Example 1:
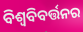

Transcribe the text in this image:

ବିଶ୍ଵବିବର୍ତ୍ତନର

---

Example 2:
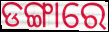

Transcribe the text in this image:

ଡଙ୍ଗାରେ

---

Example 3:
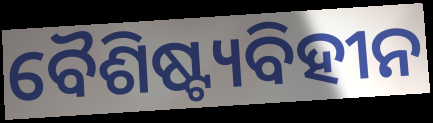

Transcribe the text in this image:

ବୈଶିଷ୍ଟ୍ୟବିହୀନ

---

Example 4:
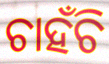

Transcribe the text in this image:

ଚାହଁଚି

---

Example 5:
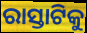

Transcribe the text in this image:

ରାସ୍ତାଟିକୁ